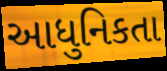
આધુનિકતા